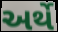
અર્થે